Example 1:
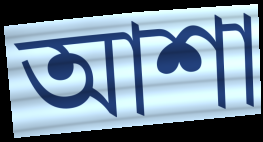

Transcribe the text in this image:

আশা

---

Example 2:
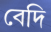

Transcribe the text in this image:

বেদি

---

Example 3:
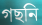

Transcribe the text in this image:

গছনি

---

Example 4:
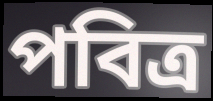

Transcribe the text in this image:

পবিত্ৰ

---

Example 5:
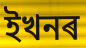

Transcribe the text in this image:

ইখনৰ